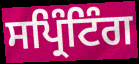
ਸਪ੍ਰਿੰਟਿੰਗ